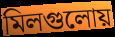
মিলগুলোয়